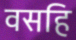
वसहि